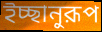
ইচ্ছানুরূপ